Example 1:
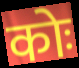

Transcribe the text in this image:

कोः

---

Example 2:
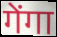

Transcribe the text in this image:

गेंगा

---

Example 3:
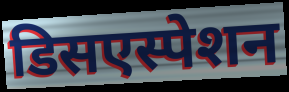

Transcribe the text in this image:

डिसएस्पेशन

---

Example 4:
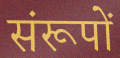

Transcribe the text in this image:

संरूपों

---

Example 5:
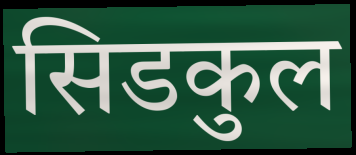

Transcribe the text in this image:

सिडकुल